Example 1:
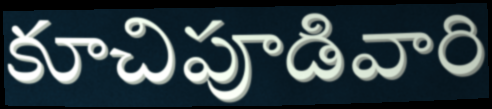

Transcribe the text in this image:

కూచిపూడివారి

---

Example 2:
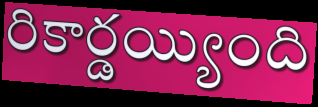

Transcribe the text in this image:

రికార్డయ్యింది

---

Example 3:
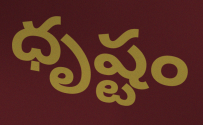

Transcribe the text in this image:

ధృష్టం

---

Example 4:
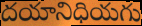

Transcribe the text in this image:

దయానిధియగు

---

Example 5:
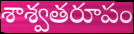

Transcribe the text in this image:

శాశ్వతరూపం